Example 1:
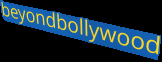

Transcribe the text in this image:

beyondbollywood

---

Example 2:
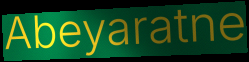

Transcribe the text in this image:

Abeyaratne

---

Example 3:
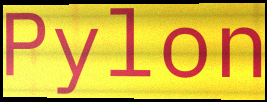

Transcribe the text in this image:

Pylon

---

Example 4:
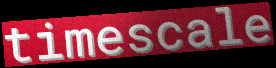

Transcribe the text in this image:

timescale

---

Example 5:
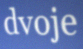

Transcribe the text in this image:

dvoje